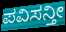
ಪವಿಸನ್ತೀ